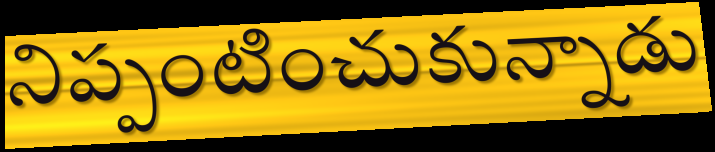
నిప్పంటించుకున్నాడు